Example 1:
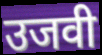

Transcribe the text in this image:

उजवी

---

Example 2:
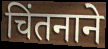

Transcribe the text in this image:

चिंतनाने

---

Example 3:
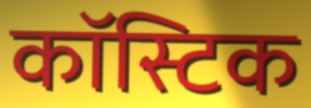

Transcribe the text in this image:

कॉस्टिक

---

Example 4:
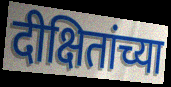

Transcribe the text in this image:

दीक्षितांच्या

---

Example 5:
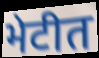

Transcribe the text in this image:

भेटीत